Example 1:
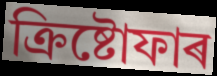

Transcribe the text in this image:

ক্ৰিষ্টোফাৰ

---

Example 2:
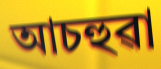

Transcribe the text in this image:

আচহুৱা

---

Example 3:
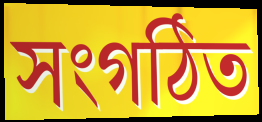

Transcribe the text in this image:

সংগঠিত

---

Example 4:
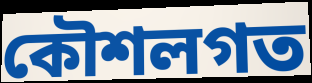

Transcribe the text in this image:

কৌশলগত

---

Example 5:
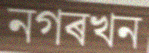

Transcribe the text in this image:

নগৰখন